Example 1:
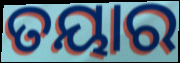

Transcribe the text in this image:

ତୟାର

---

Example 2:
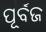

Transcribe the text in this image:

ପୂର୍ବଜ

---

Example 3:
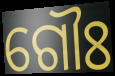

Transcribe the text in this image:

ଗୌଃ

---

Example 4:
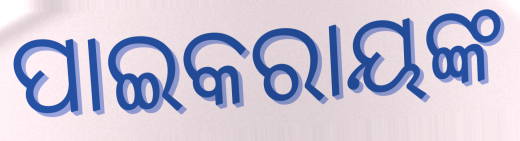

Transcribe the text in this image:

ପାଇକରାୟଙ୍କ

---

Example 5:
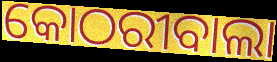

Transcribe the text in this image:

କୋଠରୀବାଲା